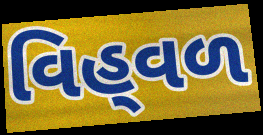
વિહ્‌વળ